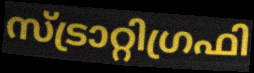
സ്ട്രാറ്റിഗ്രഫി